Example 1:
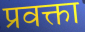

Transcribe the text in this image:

प्रवक्ता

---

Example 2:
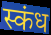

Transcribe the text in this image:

स्कंध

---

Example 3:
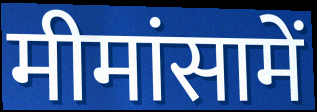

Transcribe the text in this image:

मीमांसामें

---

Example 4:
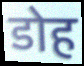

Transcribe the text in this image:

डोह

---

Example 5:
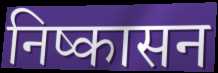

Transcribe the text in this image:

निष्कासन